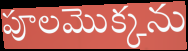
పూలమొక్కను